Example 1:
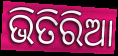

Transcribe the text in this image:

ଭିତିରିଆ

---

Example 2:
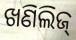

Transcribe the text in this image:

ଖଣିଲିଜ୍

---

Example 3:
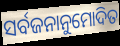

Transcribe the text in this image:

ସର୍ବଜନାନୁମୋଦିତ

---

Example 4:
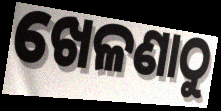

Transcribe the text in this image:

ଖେଳଣାଠୁ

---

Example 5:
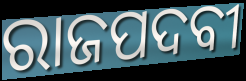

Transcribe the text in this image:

ରାଜପଦବୀ